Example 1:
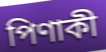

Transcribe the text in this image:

পিণাকী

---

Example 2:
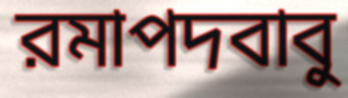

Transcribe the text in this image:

রমাপদবাবু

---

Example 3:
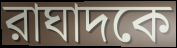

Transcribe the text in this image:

রাঘাদকে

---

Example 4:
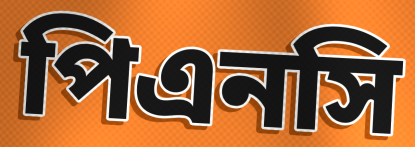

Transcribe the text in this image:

পিএনসি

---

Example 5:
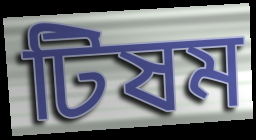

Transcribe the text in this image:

টিষম